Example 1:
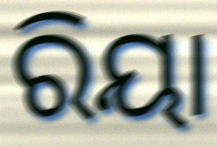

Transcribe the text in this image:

ରିୟା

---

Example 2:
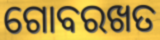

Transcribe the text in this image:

ଗୋବରଖତ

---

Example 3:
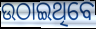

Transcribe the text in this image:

ଉଠାଇଥିବେ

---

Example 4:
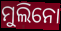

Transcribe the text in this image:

ମୁଲିନୋ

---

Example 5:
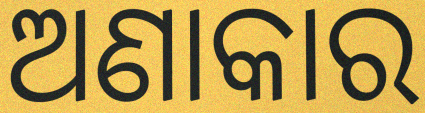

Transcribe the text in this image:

ଅଣାକାର